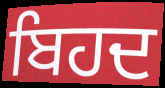
ਬਿਹਦ